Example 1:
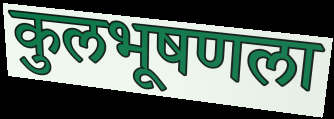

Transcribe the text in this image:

कुलभूषणला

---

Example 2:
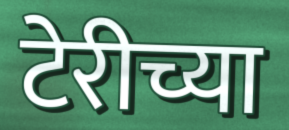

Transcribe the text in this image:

टेरीच्या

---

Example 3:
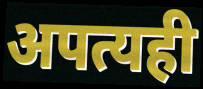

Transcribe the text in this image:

अपत्यही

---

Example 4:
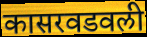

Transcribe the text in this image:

कासरवडवली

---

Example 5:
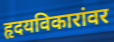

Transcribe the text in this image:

हृदयविकारांवर